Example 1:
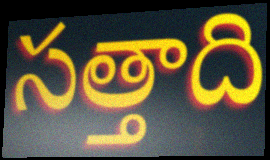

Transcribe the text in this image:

సత్తాది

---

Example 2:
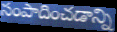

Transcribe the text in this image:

సంపాదించడాన్ని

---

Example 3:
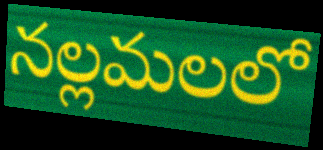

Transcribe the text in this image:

నల్లమలలో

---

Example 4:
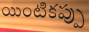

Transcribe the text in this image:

యింటికప్పు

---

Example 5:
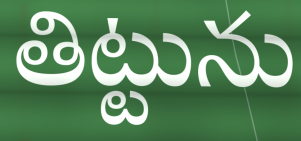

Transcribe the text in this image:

తిట్టును